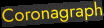
Coronagraph